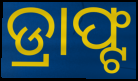
ଡ୍ରାଫ୍ଟ